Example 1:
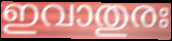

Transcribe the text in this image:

ഇവാതുരഃ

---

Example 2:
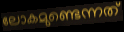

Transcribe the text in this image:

ലോകമുണ്ടെന്നത്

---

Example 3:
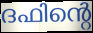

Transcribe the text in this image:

ദഫിന്റെ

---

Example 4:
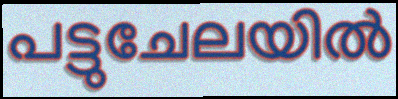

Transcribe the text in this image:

പട്ടുചേലയിൽ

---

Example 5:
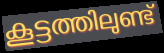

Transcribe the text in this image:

കൂട്ടത്തിലുണ്ട്